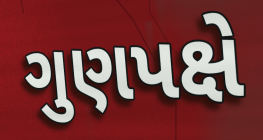
ગુણપક્ષે